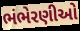
ભંભેરણીઓ